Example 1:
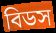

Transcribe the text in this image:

বিডস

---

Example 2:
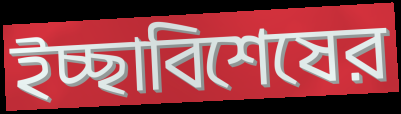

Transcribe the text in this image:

ইচ্ছাবিশেষের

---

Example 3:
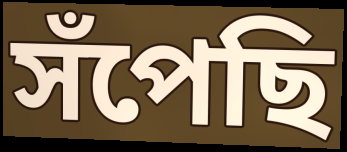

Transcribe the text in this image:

সঁপেছি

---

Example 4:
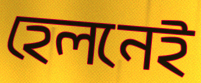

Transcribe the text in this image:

হেলনেই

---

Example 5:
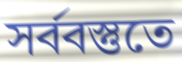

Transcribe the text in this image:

সর্ববস্তুতে